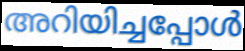
അറിയിച്ചപ്പോൾ